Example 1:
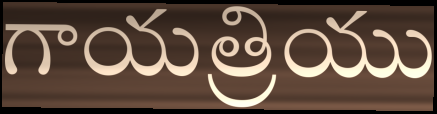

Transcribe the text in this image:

గాయత్రియు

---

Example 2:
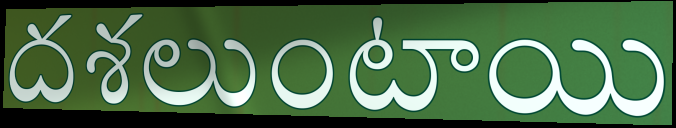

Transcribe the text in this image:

దశలుంటాయి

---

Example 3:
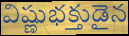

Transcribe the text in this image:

విష్ణుభక్తుడైన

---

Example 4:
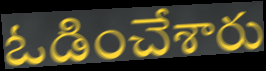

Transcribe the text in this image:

ఓడించేశారు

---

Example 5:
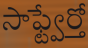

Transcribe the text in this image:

సాఫ్ట్వేర్తో